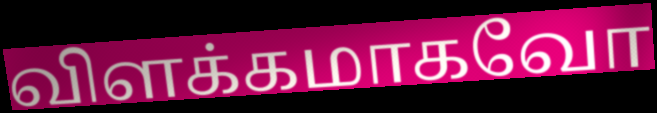
விளக்கமாகவோ